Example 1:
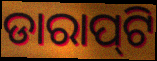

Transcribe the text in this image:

ଡାରାପ୍‌ଟି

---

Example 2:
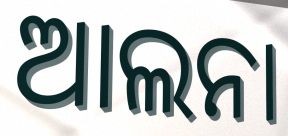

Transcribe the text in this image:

ଆଲନା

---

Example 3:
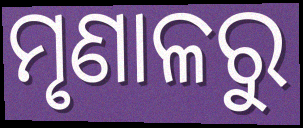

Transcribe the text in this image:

ମୃଣାଳରୁ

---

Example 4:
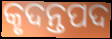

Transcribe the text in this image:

କୃଦନ୍ତପଦ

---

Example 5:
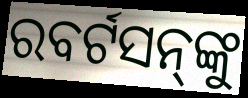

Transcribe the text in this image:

ରବର୍ଟସନ୍‌ଙ୍କୁ